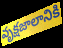
వృక్షజాలానికి